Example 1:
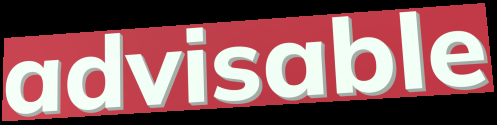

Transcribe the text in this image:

advisable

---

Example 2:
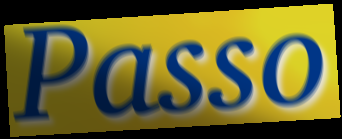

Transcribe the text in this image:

Passo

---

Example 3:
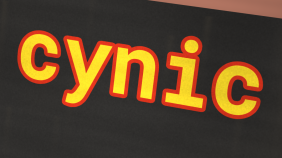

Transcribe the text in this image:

cynic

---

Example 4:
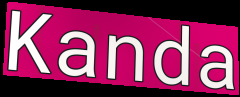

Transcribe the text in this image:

Kanda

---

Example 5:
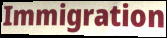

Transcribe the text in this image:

Immigration